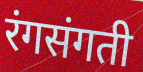
रंगसंगती